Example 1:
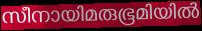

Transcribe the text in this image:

സീനായിമരുഭൂമിയിൽ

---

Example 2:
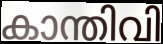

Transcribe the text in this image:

കാന്തിവി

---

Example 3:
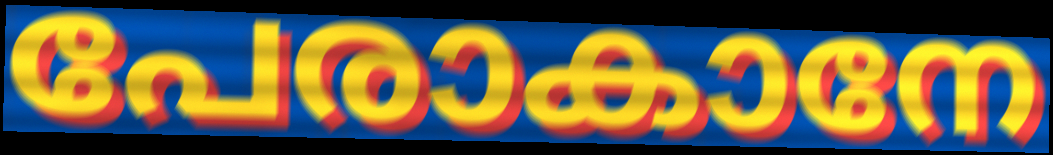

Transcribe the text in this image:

പേരാകാനേ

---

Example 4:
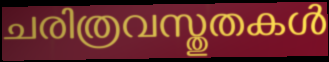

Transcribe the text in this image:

ചരിത്രവസ്തുതകൾ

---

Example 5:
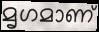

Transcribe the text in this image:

മൃഗമാണ്